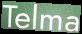
Telma